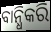
ବାନ୍ଧିକରି